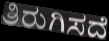
ತಿರುಗಿಸದೆ